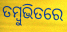
ତମ୍ବୁଭିତରେ